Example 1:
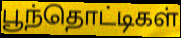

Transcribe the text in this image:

பூந்தொட்டிகள்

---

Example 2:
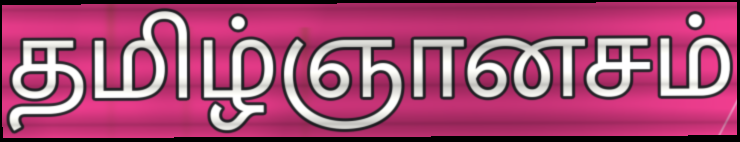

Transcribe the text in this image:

தமிழ்ஞானசம்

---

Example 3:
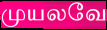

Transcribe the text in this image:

முயலவே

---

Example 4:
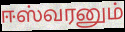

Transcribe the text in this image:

ஈஸ்வரனும்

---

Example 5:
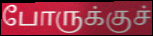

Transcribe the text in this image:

போருக்குச்